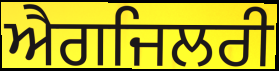
ਐਗਜਿਲਰੀ